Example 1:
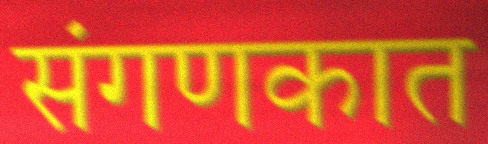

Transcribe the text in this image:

संगणकात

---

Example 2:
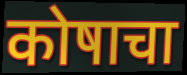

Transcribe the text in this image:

कोषाचा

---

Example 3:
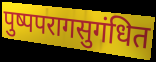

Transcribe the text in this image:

पुष्पपरागसुगंधित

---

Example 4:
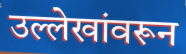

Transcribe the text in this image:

उल्लेखांवरून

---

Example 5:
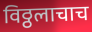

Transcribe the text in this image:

विठ्ठलाचाच